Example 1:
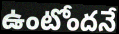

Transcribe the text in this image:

ఉంటోందనే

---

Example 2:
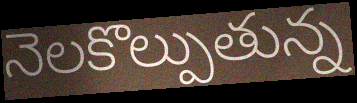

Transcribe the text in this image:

నెలకొల్పుతున్న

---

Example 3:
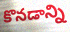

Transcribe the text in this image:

కొనడాన్ని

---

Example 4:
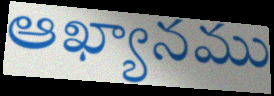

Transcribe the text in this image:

ఆఖ్యానము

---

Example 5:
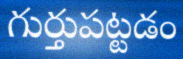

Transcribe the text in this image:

గుర్తుపట్టడం